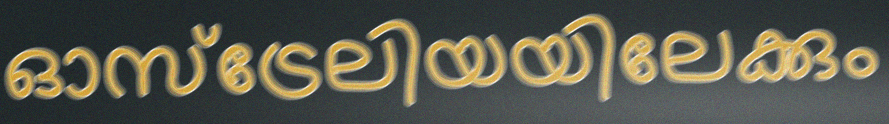
ഓസ്ട്രേലിയയിലേക്കും